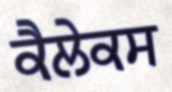
ਕੈਲੇਕਸ